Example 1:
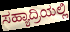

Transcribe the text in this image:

ಸಹ್ಯಾದ್ರಿಯಲ್ಲಿ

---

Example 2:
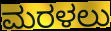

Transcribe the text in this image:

ಮರಳಲು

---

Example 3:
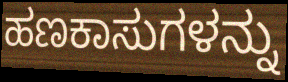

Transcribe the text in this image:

ಹಣಕಾಸುಗಳನ್ನು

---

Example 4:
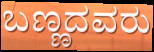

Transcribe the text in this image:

ಬಣ್ಣದವರು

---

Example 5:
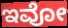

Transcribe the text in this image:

ಇವೋ